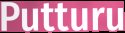
Putturu